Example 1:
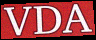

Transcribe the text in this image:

VDA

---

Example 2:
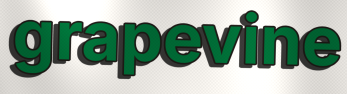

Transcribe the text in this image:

grapevine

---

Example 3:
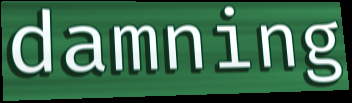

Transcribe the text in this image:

damning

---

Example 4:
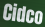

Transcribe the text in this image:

Cidco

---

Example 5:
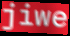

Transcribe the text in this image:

jiwe